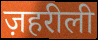
ज़हरीली